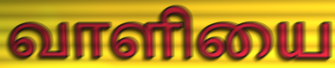
வாளியை